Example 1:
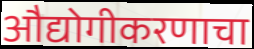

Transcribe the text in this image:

औद्योगीकरणाचा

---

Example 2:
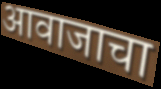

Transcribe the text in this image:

आवाजाचा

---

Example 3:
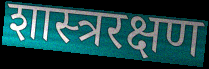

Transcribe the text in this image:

शास्त्ररक्षण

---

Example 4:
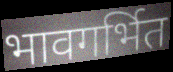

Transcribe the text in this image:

भावगर्भित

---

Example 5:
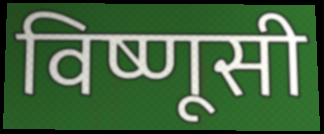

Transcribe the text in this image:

विष्णूसी